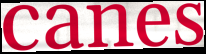
canes